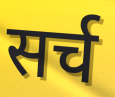
सर्च